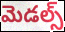
మెడల్స్